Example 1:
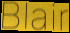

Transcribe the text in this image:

Blair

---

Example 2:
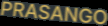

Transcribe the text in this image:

PRASANGO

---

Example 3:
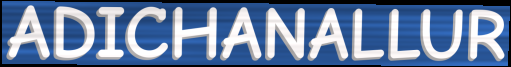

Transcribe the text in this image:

ADICHANALLUR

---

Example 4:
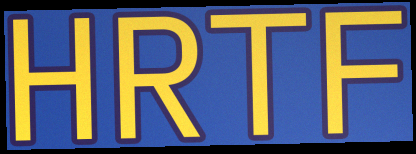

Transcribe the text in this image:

HRTF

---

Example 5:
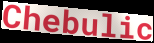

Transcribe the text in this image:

Chebulic